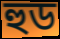
হুড